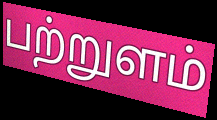
பற்றுளம்